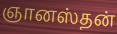
ஞானஸ்தன்